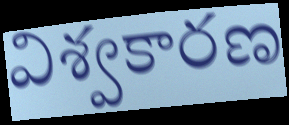
విశ్వకారణ